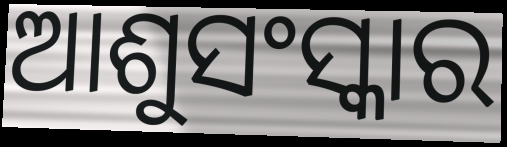
ଆଶୁସଂସ୍କାର